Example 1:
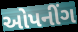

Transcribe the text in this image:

ઓપનીંગ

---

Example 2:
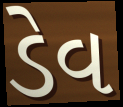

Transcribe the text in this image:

ડેવ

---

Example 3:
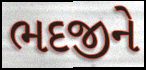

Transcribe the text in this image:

ભદજીને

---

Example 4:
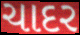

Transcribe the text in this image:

ચાદર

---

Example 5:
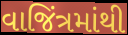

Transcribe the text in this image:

વાજિંત્રમાંથી